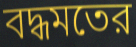
বদ্ধমতের